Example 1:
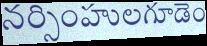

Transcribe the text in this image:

నర్సింహులగూడెం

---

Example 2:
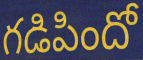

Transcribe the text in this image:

గడిపిందో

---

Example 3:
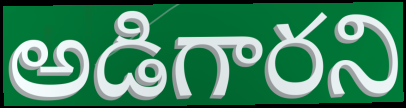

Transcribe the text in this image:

అడిగారని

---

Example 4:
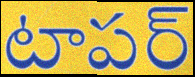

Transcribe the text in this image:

టాపర్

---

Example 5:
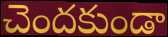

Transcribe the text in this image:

చెందకుండా